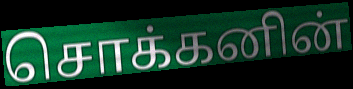
சொக்கனின்